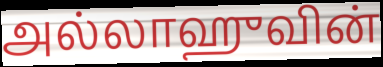
அல்லாஹுவின்